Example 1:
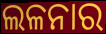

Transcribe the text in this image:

ଲଳନାର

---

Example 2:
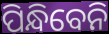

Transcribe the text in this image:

ପିନ୍ଧିବେନି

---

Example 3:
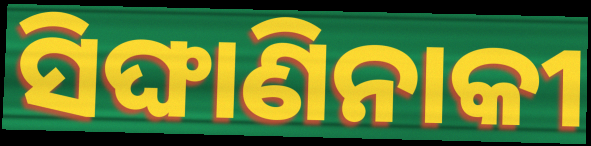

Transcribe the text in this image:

ସିଙ୍ଘାଣିନାକୀ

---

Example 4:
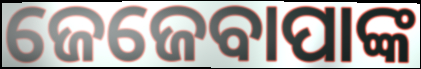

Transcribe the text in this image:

ଜେଜେବାପାଙ୍କ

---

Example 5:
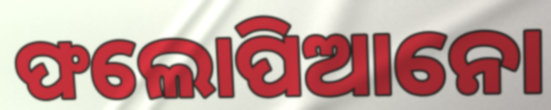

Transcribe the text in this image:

ଫଲୋପିଆନୋ